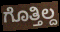
ಗೊತ್ತಿಲ್ದ